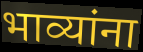
भाव्यांना